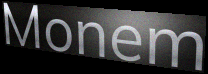
Monem